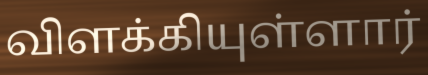
விளக்கியுள்ளார்